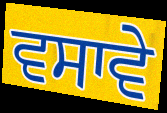
ਵਸਾਵੇ